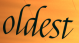
oldest